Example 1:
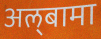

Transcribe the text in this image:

अल्बामा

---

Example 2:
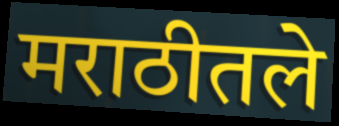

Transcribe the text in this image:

मराठीतले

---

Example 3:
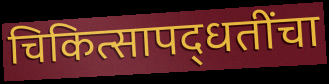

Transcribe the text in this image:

चिकित्सापद्धतींचा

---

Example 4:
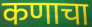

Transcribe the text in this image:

कणाचा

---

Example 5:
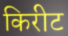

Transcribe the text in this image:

किरीट